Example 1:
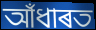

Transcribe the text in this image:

আঁধাৰত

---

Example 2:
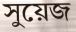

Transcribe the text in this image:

সুয়েজ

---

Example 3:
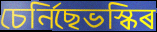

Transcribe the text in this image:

চেৰ্নিছেভস্কিৰ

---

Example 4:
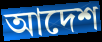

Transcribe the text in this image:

আদেশ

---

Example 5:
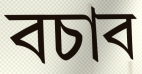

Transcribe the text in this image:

বচাব